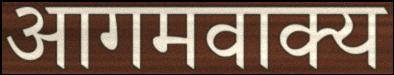
आगमवाक्य